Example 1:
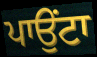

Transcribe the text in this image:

ਪਾਉੰਟਾ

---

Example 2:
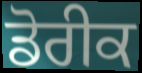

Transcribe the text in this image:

ਡੋਰੀਕ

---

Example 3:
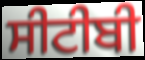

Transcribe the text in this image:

ਸੀਟੀਬੀ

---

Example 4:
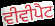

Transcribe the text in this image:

ਵੀਵੀਪੈਟ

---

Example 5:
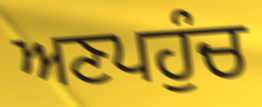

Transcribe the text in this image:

ਅਣਪਹੁੰਚ